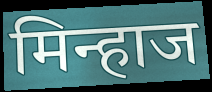
मिन्हाज